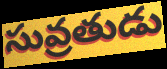
సువ్రతుడు